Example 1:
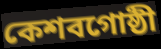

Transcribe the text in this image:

কেশবগোষ্ঠী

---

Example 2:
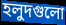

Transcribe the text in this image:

হলুদগুলো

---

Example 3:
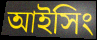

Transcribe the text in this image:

আইসিং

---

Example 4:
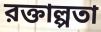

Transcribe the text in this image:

রক্তাল্পতা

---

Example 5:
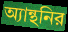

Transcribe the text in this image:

অ্যান্থনির